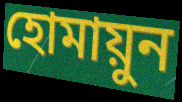
হোমায়ুন